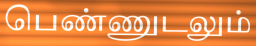
பெண்ணுடலும்